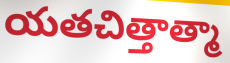
యతచిత్తాత్మా